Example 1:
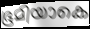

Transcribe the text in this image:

ഭൂമിയാകെ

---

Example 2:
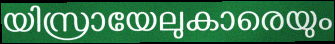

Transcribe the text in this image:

യിസ്രായേലുകാരെയും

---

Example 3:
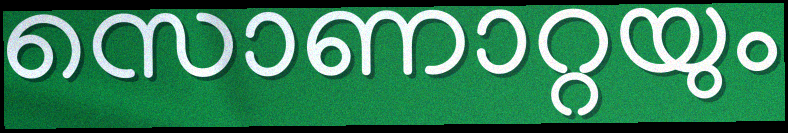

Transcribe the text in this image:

സൊണാറ്റയും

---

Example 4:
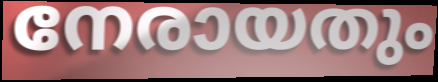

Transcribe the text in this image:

നേരായതും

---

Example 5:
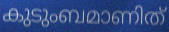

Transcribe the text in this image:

കുടുംബമാണിത്